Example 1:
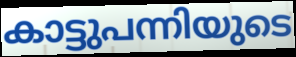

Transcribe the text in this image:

കാട്ടുപന്നിയുടെ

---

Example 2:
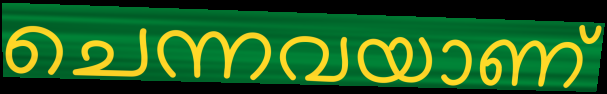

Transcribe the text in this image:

ചെന്നവയാണ്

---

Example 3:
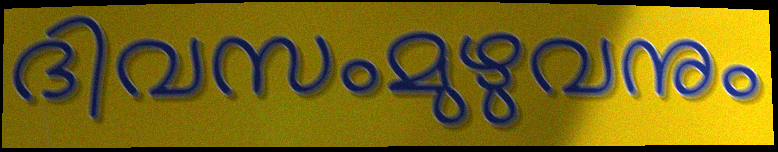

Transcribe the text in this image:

ദിവസംമുഴുവനും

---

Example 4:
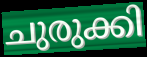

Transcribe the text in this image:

ചുരുക്കി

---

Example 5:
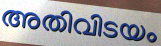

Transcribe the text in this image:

അതിവിടയം